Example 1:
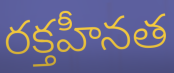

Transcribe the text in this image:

రక్తహీనత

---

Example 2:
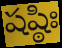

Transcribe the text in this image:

షష్ఠిః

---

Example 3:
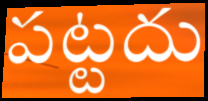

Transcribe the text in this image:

పట్టదు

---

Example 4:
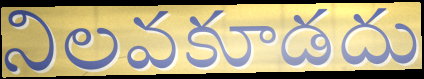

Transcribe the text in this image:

నిలవకూడదు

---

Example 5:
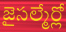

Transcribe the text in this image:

జైసల్మేర్లో